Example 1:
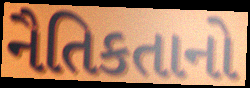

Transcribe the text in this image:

નૈતિકતાનો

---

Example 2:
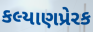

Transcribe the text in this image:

કલ્યાણપ્રેરક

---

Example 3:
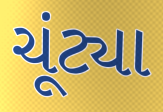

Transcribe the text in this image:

ચૂંટ્યા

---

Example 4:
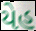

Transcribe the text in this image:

યેહ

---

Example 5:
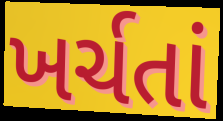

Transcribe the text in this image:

ખર્ચતાં